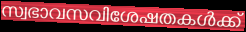
സ്വഭാവസവിശേഷതകൾക്ക്